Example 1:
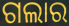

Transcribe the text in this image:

ଗଲାର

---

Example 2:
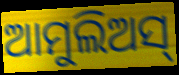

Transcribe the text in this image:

ଆମୁଲିଅସ୍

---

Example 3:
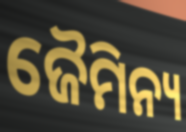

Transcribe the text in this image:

ଜୈମିନ୍ୟ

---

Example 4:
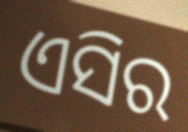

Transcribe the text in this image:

ଏସିର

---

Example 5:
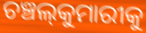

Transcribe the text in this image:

ଚଞ୍ଚଲ୍‍କୁମାରୀକୁ